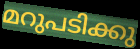
മറുപടിക്കു